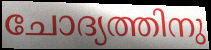
ചോദ്യത്തിനു